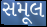
સમૂલ